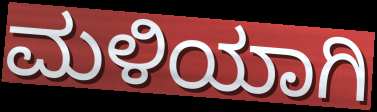
ಮಳಿಯಾಗಿ